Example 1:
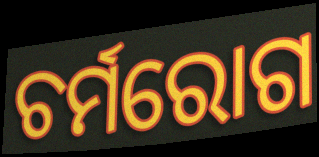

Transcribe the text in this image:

ଚର୍ମରୋଗ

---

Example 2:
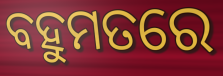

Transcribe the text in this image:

ବହୁମତରେ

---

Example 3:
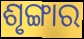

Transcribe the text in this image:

ଶୃଙ୍ଗାର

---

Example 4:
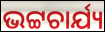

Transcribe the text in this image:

ଭଟ୍ଟଚାର୍ଯ୍ୟ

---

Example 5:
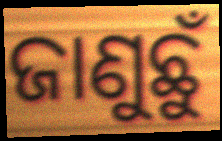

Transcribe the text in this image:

ଜାଣୁଛୁଁ